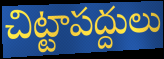
చిట్టాపద్దులు